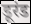
डूरंड